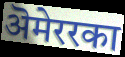
ऄमेररका